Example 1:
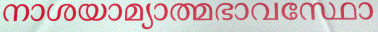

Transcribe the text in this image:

നാശയാമ്യാത്മഭാവസ്ഥോ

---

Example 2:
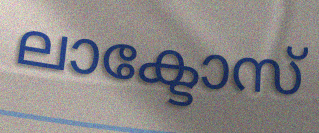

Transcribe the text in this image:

ലാക്ടോസ്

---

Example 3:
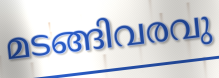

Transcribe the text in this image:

മടങ്ങിവരവു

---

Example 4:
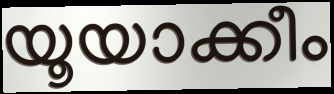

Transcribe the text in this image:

യൂയാക്കീം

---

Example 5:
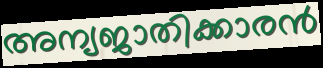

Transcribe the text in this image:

അന്യജാതിക്കാരൻ